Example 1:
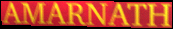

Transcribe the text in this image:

AMARNATH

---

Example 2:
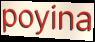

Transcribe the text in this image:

poyina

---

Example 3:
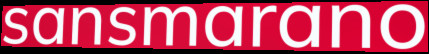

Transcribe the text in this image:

sansmarano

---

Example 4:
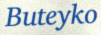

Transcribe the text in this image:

Buteyko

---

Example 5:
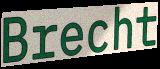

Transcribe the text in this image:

Brecht